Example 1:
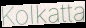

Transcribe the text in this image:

Kolkatta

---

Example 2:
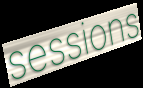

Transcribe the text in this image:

sessions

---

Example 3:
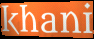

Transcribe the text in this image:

khani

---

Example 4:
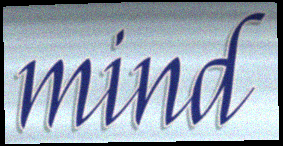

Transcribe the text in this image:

mind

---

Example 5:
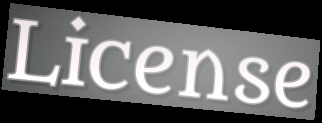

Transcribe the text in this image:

License